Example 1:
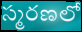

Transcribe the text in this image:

స్మరణలో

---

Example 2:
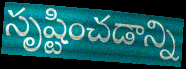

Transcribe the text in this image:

సృష్టించడాన్ని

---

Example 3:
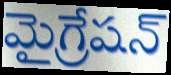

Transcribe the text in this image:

మైగ్రేషన్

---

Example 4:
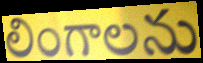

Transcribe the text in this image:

లింగాలను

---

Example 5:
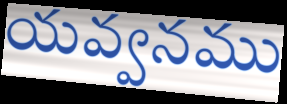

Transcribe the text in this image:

యవ్వనము